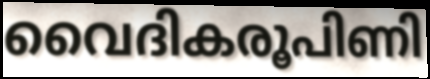
വൈദികരൂപിണി